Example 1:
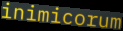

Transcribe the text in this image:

inimicorum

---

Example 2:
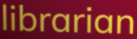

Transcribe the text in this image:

librarian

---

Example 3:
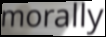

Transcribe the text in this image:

morally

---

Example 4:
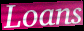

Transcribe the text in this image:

Loans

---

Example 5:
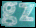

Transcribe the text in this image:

gz